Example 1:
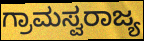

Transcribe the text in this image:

ಗ್ರಾಮಸ್ವರಾಜ್ಯ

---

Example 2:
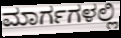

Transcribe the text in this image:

ಮಾರ್ಗಗಳಲ್ಲಿ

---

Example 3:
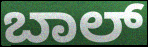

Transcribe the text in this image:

ಬಾಲ್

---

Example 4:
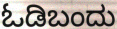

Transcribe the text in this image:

ಓಡಿಬಂದು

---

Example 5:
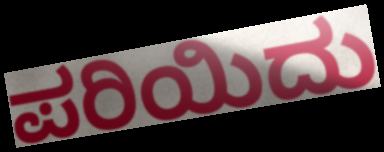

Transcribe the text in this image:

ಪರಿಯಿದು